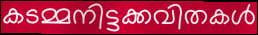
കടമ്മനിട്ടക്കവിതകൾ